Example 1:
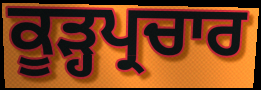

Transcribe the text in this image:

ਕੂੜ੍ਹਪ੍ਰਚਾਰ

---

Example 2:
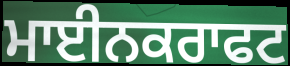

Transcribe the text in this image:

ਮਾਈਨਕਰਾਫਟ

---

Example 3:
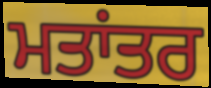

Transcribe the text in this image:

ਮਤਾਂਤਰ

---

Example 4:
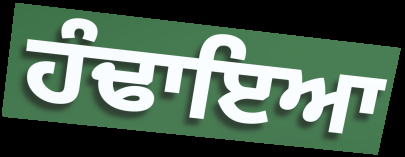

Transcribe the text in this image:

ਹੰਢਾਇਆ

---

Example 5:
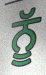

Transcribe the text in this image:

ਨੂੱ